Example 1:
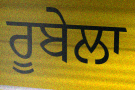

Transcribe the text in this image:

ਰੂਬੇਲਾ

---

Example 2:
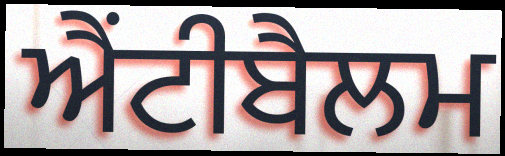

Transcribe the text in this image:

ਐਂਟੀਬੈਲਮ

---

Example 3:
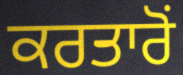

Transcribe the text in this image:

ਕਰਤਾਰੋਂ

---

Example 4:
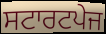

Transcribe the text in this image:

ਸਟਾਰਟਪੇਜ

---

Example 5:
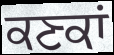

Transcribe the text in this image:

ਕਣਕਾਂ